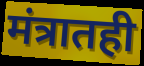
मंत्रातही